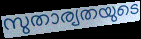
സുതാര്യതയുടെ